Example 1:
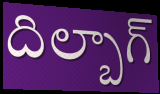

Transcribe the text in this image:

దిల్బాగ్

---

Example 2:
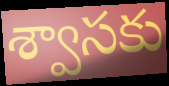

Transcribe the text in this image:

శ్వాసకు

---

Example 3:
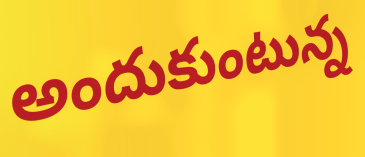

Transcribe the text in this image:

అందుకుంటున్న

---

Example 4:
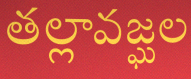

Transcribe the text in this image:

తల్లావజ్ఘల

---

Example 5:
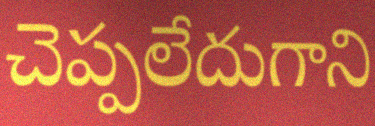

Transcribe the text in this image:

చెప్పలేదుగాని